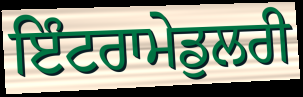
ਇੰਟਰਾਮੇਡੁਲਰੀ